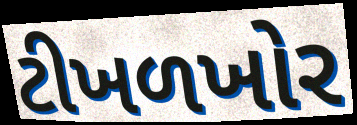
ટીખળખોર